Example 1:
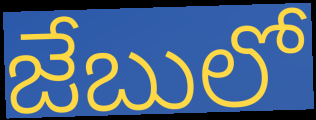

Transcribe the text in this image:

జేబులో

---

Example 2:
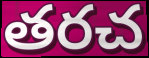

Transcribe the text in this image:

తరచ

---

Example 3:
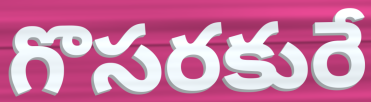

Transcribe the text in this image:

గొసరకురే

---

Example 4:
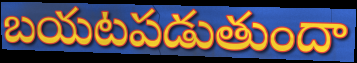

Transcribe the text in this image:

బయటపడుతుందా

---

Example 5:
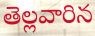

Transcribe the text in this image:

తెల్లవారిన